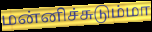
மன்னிச்சுடும்மா